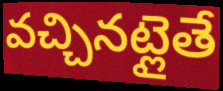
వచ్చినట్లైతే